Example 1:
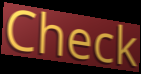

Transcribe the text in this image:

Check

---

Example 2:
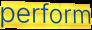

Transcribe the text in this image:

perform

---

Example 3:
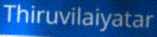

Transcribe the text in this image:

Thiruvilaiyatar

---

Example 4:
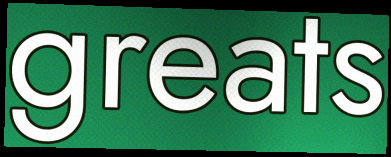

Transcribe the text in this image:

greats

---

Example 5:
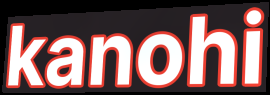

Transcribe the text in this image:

kanohi